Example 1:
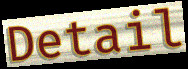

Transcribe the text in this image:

Detail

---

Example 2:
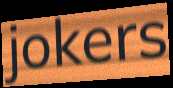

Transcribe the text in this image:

jokers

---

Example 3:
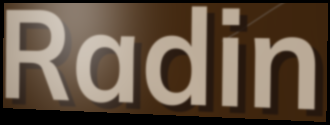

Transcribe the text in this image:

Radin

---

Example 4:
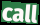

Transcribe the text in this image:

call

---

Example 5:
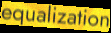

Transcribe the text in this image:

equalization